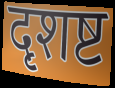
दृशष्ट